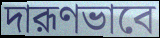
দারূণভাবে